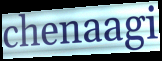
chenaagi